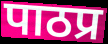
पाठप्र